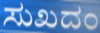
ಸುಖದಂ